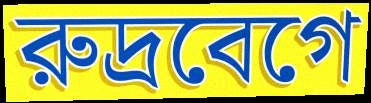
রুদ্রবেগে